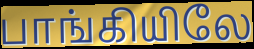
பாங்கியிலே